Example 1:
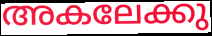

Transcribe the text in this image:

അകലേക്കു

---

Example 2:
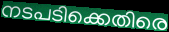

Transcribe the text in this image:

നടപടിക്കെതിരെ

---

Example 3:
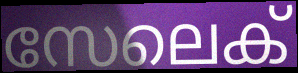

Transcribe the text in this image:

സേലെക്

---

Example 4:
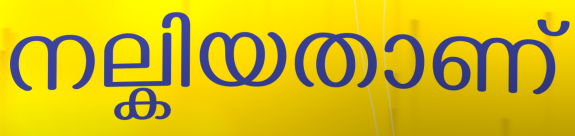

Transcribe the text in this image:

നല്കിയതാണ്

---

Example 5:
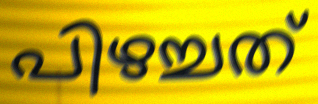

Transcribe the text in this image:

പിഴച്ചത്